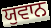
ਯੁਵਾਨ